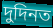
দুদিনত